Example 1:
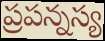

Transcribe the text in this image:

ప్రపన్నస్య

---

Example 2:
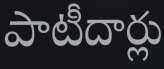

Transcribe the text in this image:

పాటీదార్లు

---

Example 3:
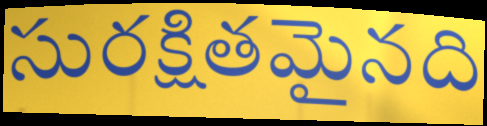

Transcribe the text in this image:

సురక్షితమైనది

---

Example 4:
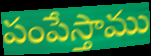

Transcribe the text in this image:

పంపేస్తాము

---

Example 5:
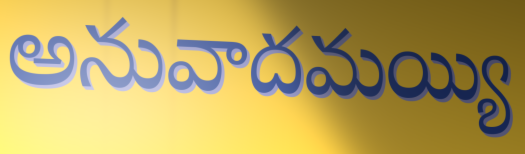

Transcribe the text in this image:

అనువాదమయ్యి